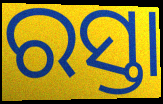
ରସ୍ତା